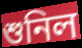
শুনিল